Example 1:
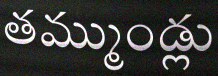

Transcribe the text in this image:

తమ్ముండ్లు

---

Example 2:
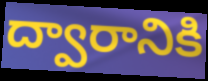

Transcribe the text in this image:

ద్వారానికి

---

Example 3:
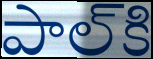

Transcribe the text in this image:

పాల్‌కి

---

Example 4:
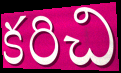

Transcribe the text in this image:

కరిచి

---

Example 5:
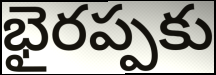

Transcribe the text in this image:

భైరప్పకు